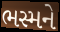
ભસ્મને